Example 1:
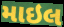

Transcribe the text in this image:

માઇલ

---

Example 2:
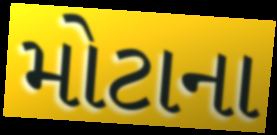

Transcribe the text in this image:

મોટાના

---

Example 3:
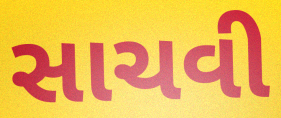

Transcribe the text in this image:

સાચવી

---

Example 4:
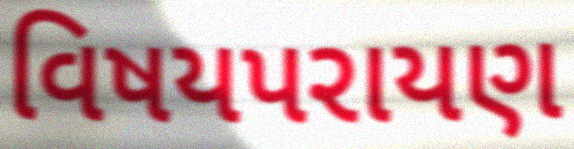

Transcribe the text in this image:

વિષયપરાયણ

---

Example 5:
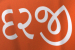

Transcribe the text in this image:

દરજી